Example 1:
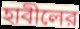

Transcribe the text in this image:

হাবীলের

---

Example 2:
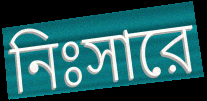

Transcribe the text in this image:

নিঃসারে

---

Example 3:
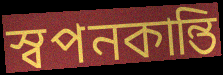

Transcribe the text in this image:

স্বপনকান্তি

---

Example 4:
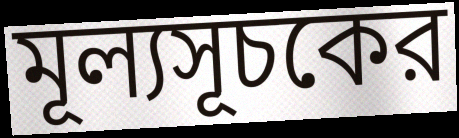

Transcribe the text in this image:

মূল্যসূচকের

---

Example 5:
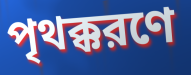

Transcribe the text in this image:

পৃথক্করণে